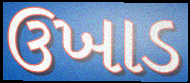
ઉખાડ